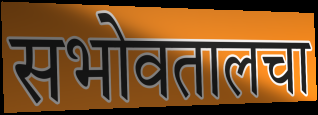
सभोवतालचा